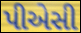
પીએસી